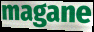
magane